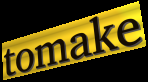
tomake